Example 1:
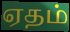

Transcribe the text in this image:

ஏதம்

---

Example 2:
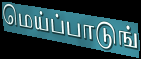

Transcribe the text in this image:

மெய்ப்பாடுங்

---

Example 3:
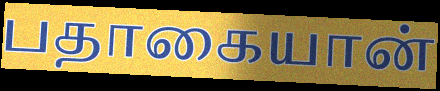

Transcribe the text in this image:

பதாகையான்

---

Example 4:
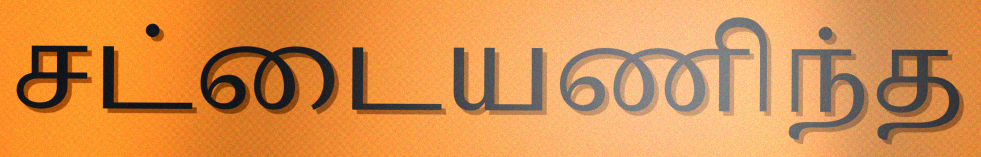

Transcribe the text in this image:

சட்டையணிந்த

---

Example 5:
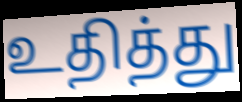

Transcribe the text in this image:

உதித்து